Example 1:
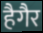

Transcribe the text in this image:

हैगैर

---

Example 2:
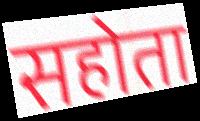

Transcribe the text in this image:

सहोता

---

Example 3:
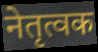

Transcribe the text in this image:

नेतृत्वक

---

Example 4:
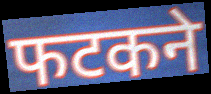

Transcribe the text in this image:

फटकने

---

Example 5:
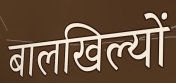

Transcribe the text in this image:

बालखिल्यों